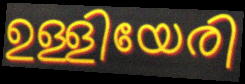
ഉള്ളിയേരി